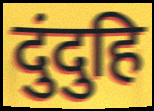
दुंदुहि